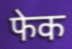
फेक